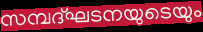
സമ്പദ്ഘടനയുടെയും